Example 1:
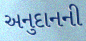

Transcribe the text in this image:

અનુદાનની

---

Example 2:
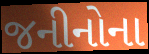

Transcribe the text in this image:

જનીનોના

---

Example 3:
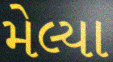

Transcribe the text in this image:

મેલ્યા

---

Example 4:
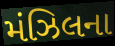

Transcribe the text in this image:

મંઝિલના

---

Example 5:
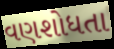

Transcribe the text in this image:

વણશોધતા